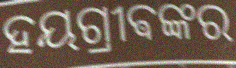
ହୟଗ୍ରୀଵଙ୍କର